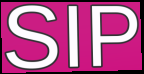
SIP